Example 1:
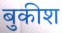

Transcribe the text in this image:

बुकीश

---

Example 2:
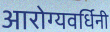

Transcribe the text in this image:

आरोग्यवर्धिनी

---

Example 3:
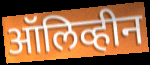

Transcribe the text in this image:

ऑलिव्हीन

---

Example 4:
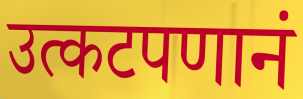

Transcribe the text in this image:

उत्कटपणानं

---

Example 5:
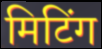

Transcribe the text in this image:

मिटिंग